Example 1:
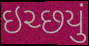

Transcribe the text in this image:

ઇચ્છયું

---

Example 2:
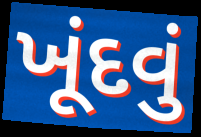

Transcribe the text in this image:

ખૂંદવું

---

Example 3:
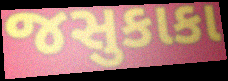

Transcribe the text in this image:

જસુકાકા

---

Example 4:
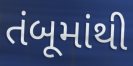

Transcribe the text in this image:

તંબૂમાંથી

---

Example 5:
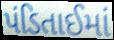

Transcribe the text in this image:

પંડિતાઈમાં